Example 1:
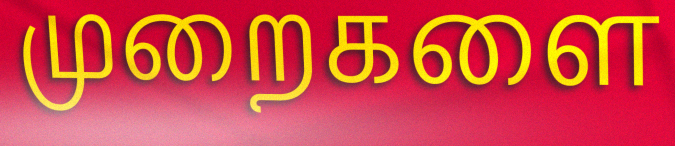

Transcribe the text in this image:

முறைகளை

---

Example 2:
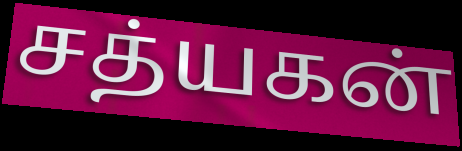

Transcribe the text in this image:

சத்யகன்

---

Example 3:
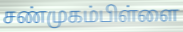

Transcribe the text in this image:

சண்முகம்பிள்ளை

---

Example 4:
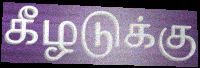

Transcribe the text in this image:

கீழடுக்கு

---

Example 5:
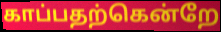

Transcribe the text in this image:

காப்பதற்கென்றே